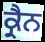
ਕ੍ਰੈਨ